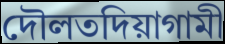
দৌলতদিয়াগামী